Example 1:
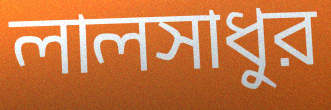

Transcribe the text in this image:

লালসাধুর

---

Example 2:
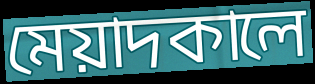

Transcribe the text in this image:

মেয়াদকালে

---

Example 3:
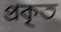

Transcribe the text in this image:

প্রকৃত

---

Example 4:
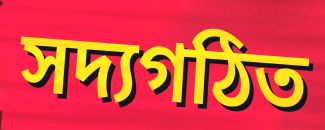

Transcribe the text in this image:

সদ্যগঠিত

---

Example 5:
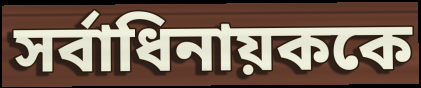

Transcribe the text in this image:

সর্বাধিনায়ককে